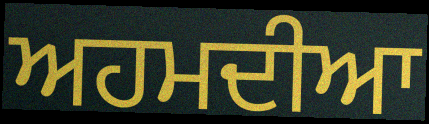
ਅਹਮਦੀਆ